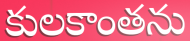
కులకాంతను